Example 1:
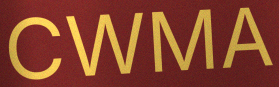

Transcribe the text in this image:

CWMA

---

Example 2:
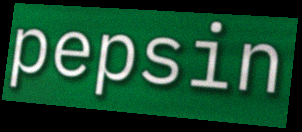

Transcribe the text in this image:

pepsin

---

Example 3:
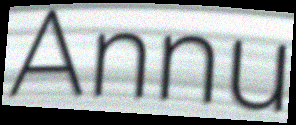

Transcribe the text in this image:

Annu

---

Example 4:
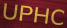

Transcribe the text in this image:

UPHC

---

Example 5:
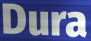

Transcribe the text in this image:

Dura